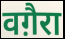
वग़ैरा